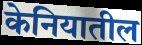
केनियातील